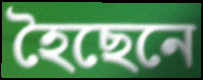
হৈছেনে